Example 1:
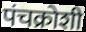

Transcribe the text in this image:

पंचक्रोशी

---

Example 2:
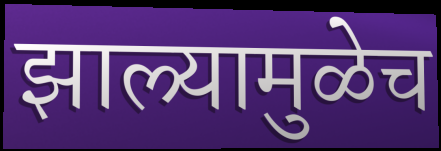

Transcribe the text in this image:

झाल्यामुळेच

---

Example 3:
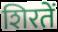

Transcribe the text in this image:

शिरतें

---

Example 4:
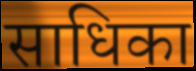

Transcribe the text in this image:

साधिका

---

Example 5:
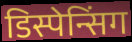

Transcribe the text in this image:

डिस्पेन्सिंग